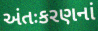
અંતઃકરણનાં